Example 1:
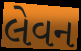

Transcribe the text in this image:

લેવન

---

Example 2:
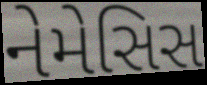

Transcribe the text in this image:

નેમેસિસ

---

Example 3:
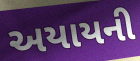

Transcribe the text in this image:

અયાયની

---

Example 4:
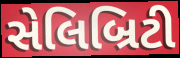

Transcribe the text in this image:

સેલિબ્રિટી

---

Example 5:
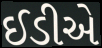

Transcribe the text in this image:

ઈડીએ